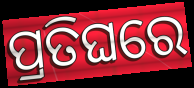
ପ୍ରତିଘରେ